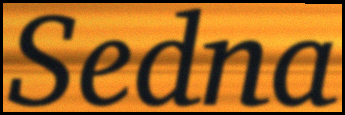
Sedna